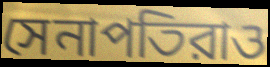
সেনাপতিরাও